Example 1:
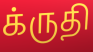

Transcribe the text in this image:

க்ருதி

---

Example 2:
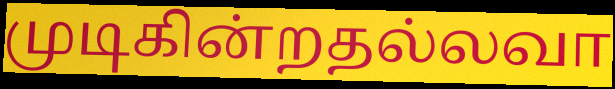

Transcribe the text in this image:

முடிகின்றதல்லவா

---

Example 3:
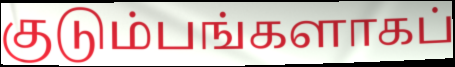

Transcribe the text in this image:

குடும்பங்களாகப்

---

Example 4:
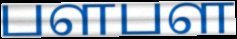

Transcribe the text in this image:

பளபள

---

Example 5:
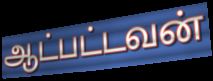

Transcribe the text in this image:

ஆட்பட்டவன்